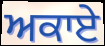
ਅਕਾਏ